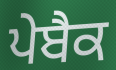
ਪੇਬੈਕ